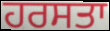
ਹਰਸਤਾ